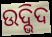
ଉଦ୍ଭିଦ